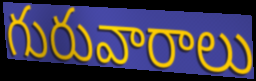
గురువారాలు